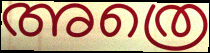
അത്രെ